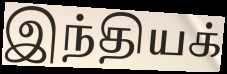
இந்தியக்